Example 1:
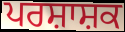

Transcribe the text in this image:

ਪਰਸ਼ਾਸ਼ਕ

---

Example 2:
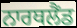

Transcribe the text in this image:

ਨਾਰਥਲੈਂਡ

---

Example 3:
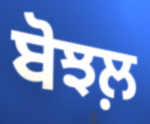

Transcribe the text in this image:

ਬੋਝਲ਼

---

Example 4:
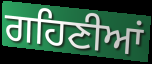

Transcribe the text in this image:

ਗਹਿਣੀਆਂ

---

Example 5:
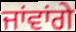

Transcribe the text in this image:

ਜਾਂਵਾਂਗੇ